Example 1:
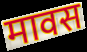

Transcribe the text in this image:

मावस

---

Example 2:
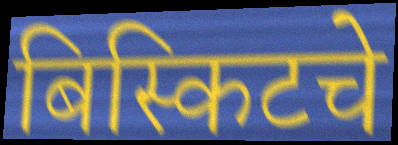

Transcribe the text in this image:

बिस्किटचे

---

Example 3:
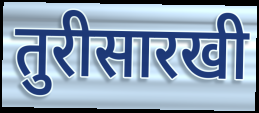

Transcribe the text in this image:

तुरीसारखी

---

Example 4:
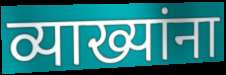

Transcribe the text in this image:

व्याख्यांना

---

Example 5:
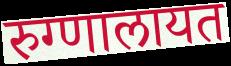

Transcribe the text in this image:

रुग्णालायत